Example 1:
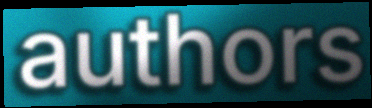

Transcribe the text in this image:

authors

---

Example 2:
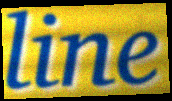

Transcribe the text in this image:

line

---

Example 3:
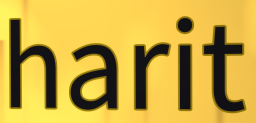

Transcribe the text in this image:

harit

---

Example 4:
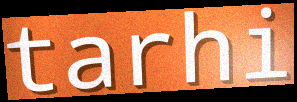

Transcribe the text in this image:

tarhi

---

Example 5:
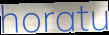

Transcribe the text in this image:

horatu